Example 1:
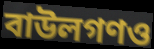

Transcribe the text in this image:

বাউলগণও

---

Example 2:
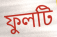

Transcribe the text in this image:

ফুলটি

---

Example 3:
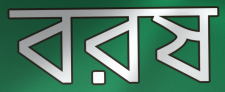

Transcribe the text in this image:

বরষ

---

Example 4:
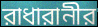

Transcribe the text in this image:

রাধারানীর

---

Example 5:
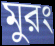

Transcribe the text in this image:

মুরং